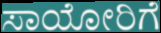
ಸಾಯೋರಿಗೆ